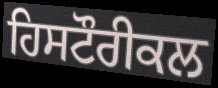
ਹਿਸਟੌਰੀਕਲ